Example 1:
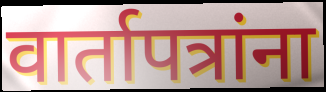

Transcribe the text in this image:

वार्तापत्रांना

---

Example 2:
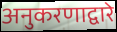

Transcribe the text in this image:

अनुकरणाद्वारे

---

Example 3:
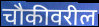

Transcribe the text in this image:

चौकीवरील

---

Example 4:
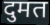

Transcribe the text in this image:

दुमत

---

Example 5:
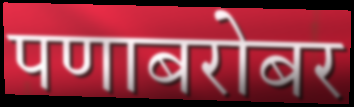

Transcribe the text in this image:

पणाबरोबर